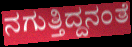
ನಗುತ್ತಿದ್ದನಂತೆ